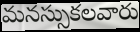
మనస్సుకలవారు